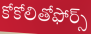
కోకోలితోఫోర్స్